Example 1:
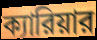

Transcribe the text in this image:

ক্যারিয়ার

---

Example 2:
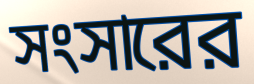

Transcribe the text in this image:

সংসারের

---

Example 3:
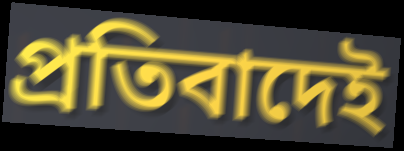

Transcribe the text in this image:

প্রতিবাদেই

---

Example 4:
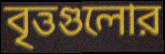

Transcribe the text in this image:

বৃত্তগুলোর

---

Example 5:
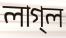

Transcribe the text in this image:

লাগ্‌ল